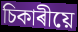
চিকাৰীয়ে